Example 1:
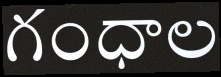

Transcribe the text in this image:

గంధాల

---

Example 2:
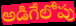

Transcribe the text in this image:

అడిగేలోపు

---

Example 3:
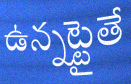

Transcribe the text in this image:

ఉన్నట్టైతే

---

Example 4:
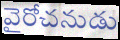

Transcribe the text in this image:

వైరోచనుడు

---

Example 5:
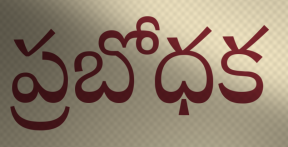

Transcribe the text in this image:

ప్రబోధక